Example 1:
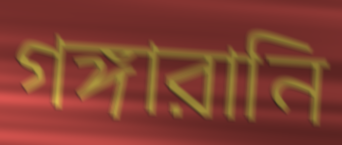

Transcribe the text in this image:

গঙ্গারানি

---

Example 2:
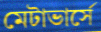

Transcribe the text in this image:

মেটাভার্সে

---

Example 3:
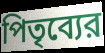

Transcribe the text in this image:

পিতৃব্যের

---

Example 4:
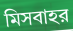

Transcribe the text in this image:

মিসবাহর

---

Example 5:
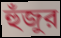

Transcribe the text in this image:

হুঁজুর